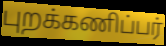
புறக்கணிப்பர்